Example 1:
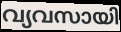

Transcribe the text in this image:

വ്യവസായി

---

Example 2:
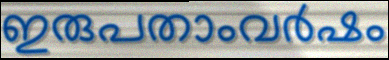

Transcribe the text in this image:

ഇരുപതാംവർഷം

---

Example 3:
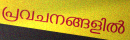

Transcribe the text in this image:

പ്രവചനങ്ങളിൽ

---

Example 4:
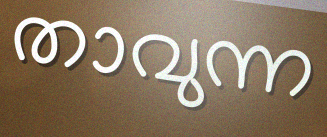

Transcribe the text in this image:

താവുന്ന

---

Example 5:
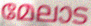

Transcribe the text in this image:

മേലാട